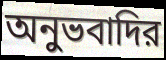
অনুভবাদির